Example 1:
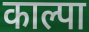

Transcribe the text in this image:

काल्पा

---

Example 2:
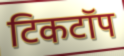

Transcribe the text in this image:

टिकटॉप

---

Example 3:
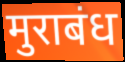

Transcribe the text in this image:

मुराबंध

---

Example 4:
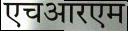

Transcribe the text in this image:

एचआरएम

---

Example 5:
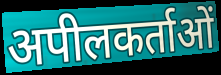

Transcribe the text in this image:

अपीलकर्ताओं